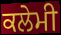
ਕਲੇਮੀ